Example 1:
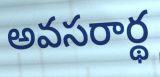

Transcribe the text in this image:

అవసరార్థ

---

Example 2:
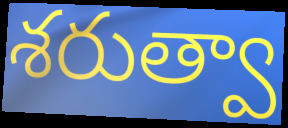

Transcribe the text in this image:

శరుత్వా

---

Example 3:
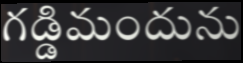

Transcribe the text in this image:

గడ్డిమందును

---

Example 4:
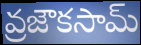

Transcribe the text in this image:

వ్రజౌకసామ్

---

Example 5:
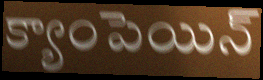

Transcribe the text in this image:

క్యాంపెయిన్